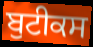
ਬੁਟੀਕਸ